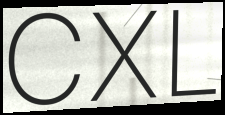
CXL